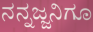
ನನ್ನಜ್ಜನಿಗೂ